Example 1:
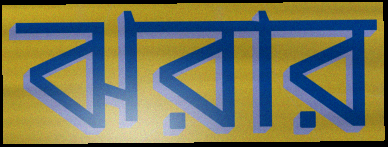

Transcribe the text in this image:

ঝরার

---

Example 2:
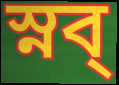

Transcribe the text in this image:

স্নব্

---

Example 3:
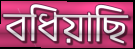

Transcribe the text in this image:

বধিয়াছি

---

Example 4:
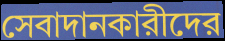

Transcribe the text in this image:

সেবাদানকারীদের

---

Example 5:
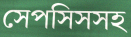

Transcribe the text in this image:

সেপসিসসহ